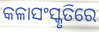
କଳାସଂସ୍କୃତିରେ